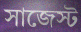
সাজেস্ট